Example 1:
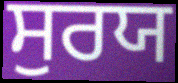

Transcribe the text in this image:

ਸੁਰਯ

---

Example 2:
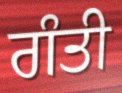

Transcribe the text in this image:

ਗੰਤੀ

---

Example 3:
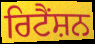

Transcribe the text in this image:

ਰਿਟੈਂਸ਼ਨ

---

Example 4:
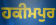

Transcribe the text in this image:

ਹਕੀਮਪੁਰ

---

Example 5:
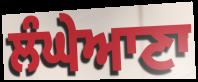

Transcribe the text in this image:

ਲੰਘੇਆਣਾ